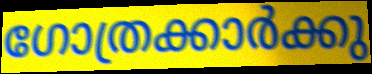
ഗോത്രക്കാർക്കു